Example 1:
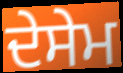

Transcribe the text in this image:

ਦੇਸੇਮ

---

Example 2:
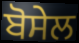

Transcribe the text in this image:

ਬੋਸੇਲ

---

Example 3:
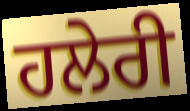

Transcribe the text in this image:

ਹਲੇਰੀ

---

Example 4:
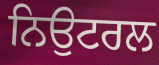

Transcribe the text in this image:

ਨਿਉਟਰਲ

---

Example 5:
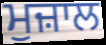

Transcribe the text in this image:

ਮੁਜ਼ਾਲ